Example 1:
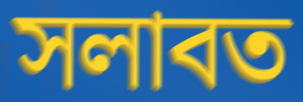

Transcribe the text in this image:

সলাবত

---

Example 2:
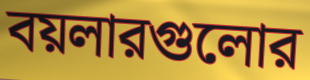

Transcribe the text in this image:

বয়লারগুলোর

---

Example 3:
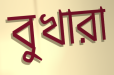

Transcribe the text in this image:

বুখারা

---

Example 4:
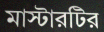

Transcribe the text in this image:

মাস্টারটির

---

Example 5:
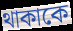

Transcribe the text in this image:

থাকাকে